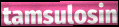
tamsulosin